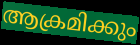
ആക്രമിക്കും